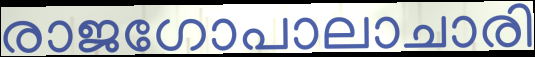
രാജഗോപാലാചാരി